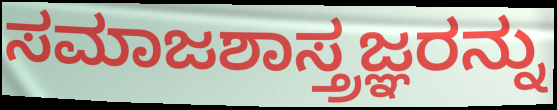
ಸಮಾಜಶಾಸ್ತ್ರಜ್ಞರನ್ನು